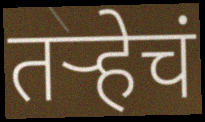
तर्‍हेचं